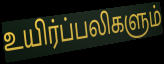
உயிர்ப்பலிகளும்